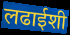
लढाईशी